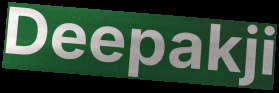
Deepakji